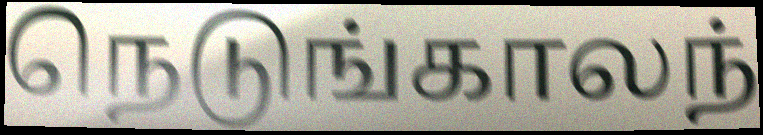
நெடுங்காலந்